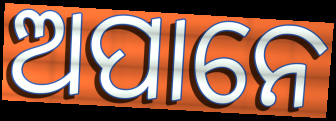
ଅପାନେ